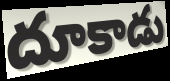
దూకాడు